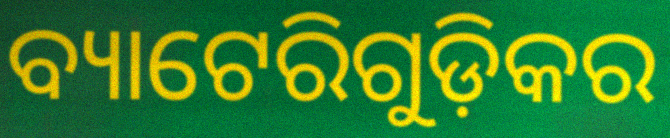
ବ୍ୟାଟେରିଗୁଡ଼ିକର